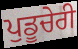
ਪੁਡੂਚੇਰੀ